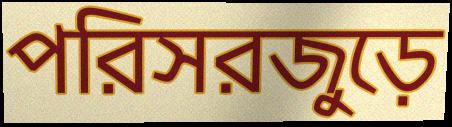
পরিসরজুড়ে